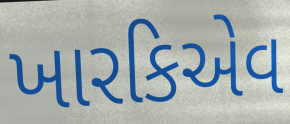
ખારકિએવ